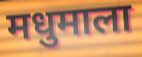
मधुमाला